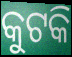
କୁଟକି